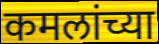
कमलांच्या